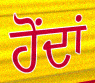
ਹੋਂਦਾਂ